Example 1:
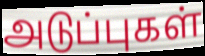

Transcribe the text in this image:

அடுப்புகள்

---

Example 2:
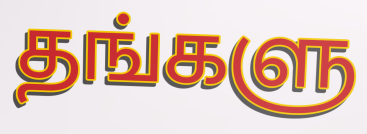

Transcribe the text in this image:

தங்களு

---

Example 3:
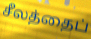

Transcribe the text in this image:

சீலத்தைப்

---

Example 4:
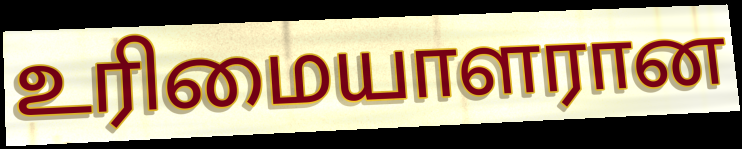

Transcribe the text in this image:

உரிமையாளரான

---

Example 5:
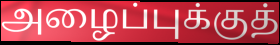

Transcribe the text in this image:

அழைப்புக்குத்